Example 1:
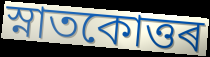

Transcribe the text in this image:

স্নাতকোত্তৰ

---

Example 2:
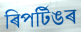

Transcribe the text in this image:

ৰিপৰ্টিঙৰ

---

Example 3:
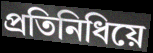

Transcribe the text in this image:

প্ৰতিনিধিয়ে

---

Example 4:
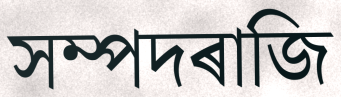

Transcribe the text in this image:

সম্পদৰাজি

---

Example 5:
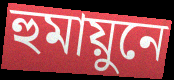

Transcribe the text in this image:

হুমায়ুনে